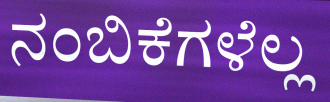
ನಂಬಿಕೆಗಳೆಲ್ಲ